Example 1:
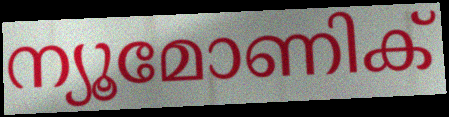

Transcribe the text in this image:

ന്യൂമോണിക്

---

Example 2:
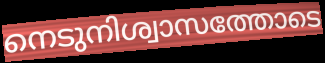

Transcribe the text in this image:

നെടുനിശ്വാസത്തോടെ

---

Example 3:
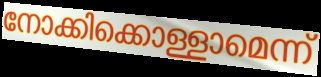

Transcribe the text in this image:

നോക്കിക്കൊള്ളാമെന്ന്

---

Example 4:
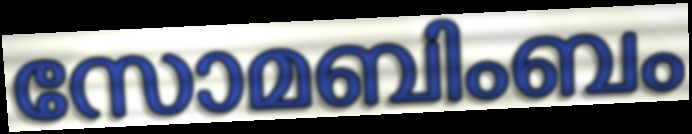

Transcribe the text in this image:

സോമബിംബം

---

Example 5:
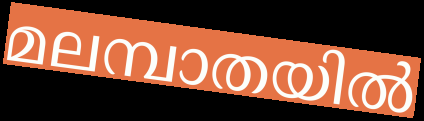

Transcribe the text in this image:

മലമ്പാതയിൽ